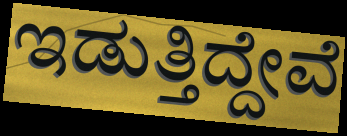
ಇಡುತ್ತಿದ್ದೇವೆ